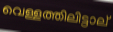
വെള്ളത്തിലിട്ടാല്